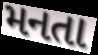
મનતા